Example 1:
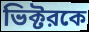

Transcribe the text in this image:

ভিক্টরকে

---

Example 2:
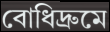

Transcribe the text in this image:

বোধিদ্রুমে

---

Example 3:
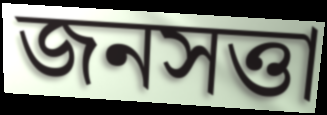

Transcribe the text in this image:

জনসত্তা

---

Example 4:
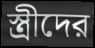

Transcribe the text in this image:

স্ত্রীদের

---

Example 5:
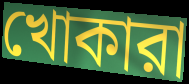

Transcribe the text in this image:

খোকারা